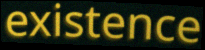
existence